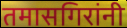
तमासगिरांनी